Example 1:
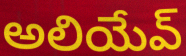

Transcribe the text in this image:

అలియేవ్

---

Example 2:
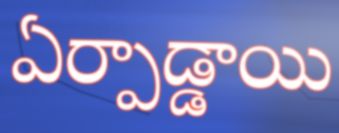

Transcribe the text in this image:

ఏర్పాడ్డాయి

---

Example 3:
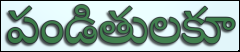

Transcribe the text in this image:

పండితులకూ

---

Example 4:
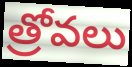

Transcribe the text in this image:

త్రోవలు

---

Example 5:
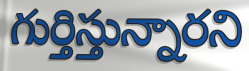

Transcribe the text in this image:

గుర్తిస్తున్నారని